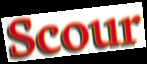
Scour